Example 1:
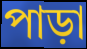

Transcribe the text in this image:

পাড়া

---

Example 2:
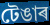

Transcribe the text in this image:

টেঙাৰ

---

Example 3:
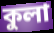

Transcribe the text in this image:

কুলা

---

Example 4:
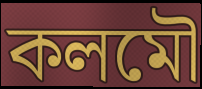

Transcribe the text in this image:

কলমৌ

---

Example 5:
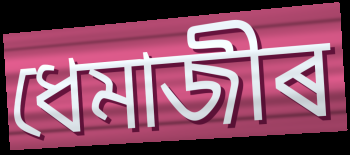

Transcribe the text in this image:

ধেমাজীৰ